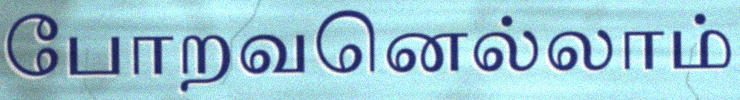
போறவனெல்லாம்